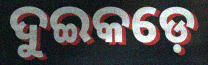
ଦୁଇକଡ଼େ